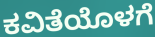
ಕವಿತೆಯೊಳಗೆ